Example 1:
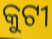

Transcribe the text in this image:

କୁଟୀ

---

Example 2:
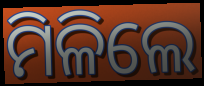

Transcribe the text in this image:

ମିଳିଲେ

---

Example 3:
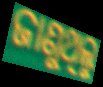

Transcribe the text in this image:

ଜାଣୁଥିଲୁ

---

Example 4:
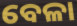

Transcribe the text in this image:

ବେଳା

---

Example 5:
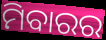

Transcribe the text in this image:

ମିବାରର